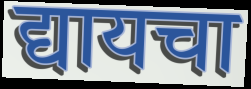
द्यायचा